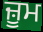
ਜ਼ੂਮ